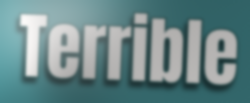
Terrible